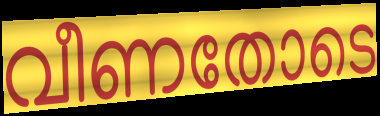
വീണതോടെ